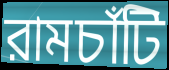
রামচাঁটি